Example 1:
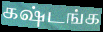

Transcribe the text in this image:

கஷ்டங்க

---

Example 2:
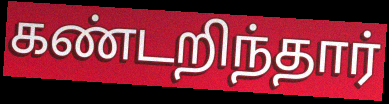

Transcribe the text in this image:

கண்டறிந்தார்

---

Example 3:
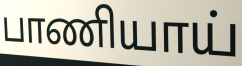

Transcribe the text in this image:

பாணியாய்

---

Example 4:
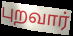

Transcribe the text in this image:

புறவார்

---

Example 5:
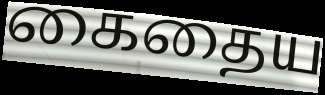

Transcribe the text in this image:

கைதைய